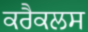
ਕਰੈਕਲਸ